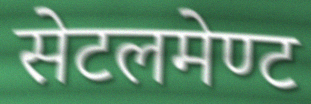
सेटलमेण्ट